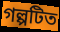
গল্পটিত